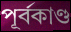
পূর্বকাণ্ড